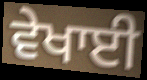
ਵੇਖਾਈ